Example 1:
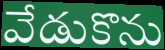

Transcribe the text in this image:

వేడుకొను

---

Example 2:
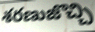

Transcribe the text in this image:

శరణుజొచ్చి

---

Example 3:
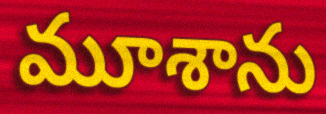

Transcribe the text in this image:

మూశాను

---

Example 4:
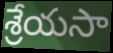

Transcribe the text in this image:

శ్రేయసా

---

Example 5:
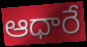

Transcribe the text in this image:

ఆధారే